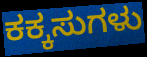
ಕಕ್ಕಸುಗಳು